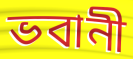
ভবানী